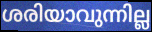
ശരിയാവുന്നില്ല